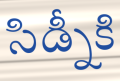
సిడ్నీకి